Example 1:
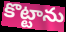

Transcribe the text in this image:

కొట్టాను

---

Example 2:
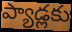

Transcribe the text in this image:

ప్యాడ్లకు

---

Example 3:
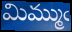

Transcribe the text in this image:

మిమ్ముఁ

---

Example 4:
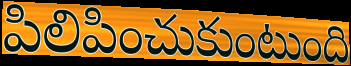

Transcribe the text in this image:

పిలిపించుకుంటుంది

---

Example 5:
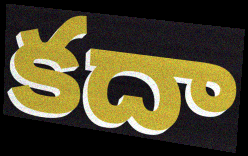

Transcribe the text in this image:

కదా